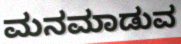
ಮನಮಾಡುವ